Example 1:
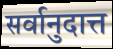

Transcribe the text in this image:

सर्वानुदात्त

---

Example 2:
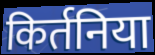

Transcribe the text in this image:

किर्तनिया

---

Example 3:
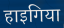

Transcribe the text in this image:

हाइगिया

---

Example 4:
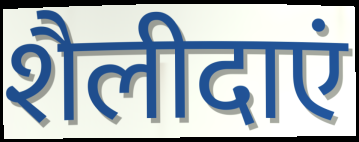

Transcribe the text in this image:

शैलीदाएं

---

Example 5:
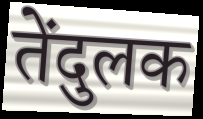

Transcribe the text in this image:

तेंदुलक